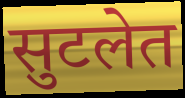
सुटलेत